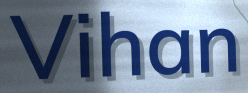
Vihan